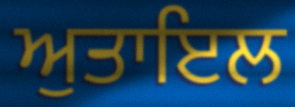
ਅੁਤਾਇਲ